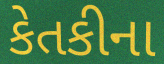
કેતકીના